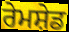
ਰੇਮਸ਼ੇਡ